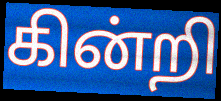
கின்றி